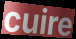
cuire